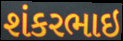
શંકરભાઇ